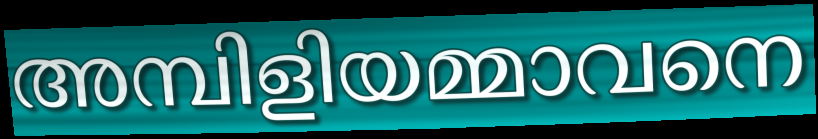
അമ്പിളിയമ്മാവനെ